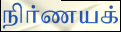
நிர்ணயக்